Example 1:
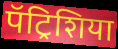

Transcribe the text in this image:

पॅट्रिशिया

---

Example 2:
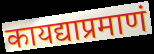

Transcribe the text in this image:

कायद्याप्रमाणं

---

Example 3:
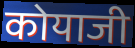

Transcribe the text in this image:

कोयाजी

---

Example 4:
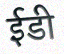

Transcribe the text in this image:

ईडी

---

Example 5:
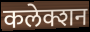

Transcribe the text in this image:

कलेक्शन